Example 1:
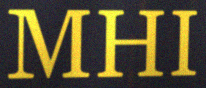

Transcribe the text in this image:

MHI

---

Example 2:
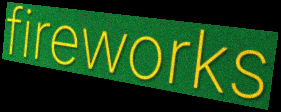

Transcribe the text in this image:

fireworks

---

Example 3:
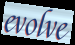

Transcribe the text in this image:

evolve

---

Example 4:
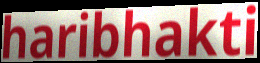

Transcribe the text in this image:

haribhakti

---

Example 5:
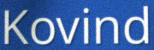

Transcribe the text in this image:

Kovind